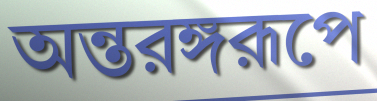
অন্তরঙ্গরূপে